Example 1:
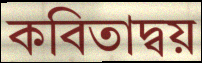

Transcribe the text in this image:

কবিতাদ্বয়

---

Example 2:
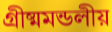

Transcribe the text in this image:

গ্রীষ্মমন্ডলীয়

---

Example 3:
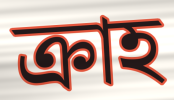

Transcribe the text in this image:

ক্রাহ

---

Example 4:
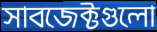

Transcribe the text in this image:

সাবজেক্টগুলো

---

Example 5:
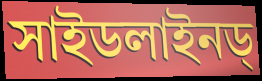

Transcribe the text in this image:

সাইডলাইনড্